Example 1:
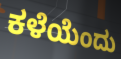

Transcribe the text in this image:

ಕಳೆಯೆಂದು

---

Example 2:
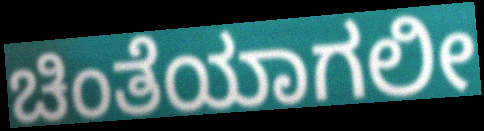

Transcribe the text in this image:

ಚಿಂತೆಯಾಗಲೀ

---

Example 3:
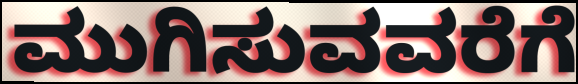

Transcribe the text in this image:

ಮುಗಿಸುವವರೆಗೆ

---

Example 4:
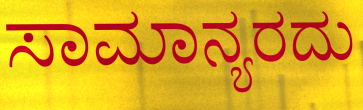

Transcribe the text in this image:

ಸಾಮಾನ್ಯರದು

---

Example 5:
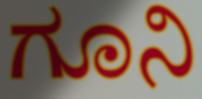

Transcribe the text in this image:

ಗೂನಿ